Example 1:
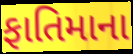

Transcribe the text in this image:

ફાતિમાના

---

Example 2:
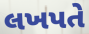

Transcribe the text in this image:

લખપતે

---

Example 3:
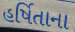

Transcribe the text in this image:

હર્ષિતાના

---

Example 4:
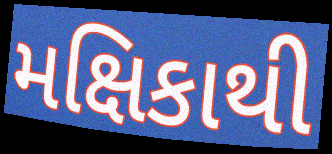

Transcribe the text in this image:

મક્ષિકાથી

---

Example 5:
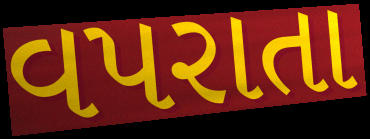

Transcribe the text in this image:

વપરાતા